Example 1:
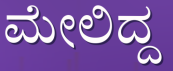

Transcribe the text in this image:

ಮೇಲಿದ್ದ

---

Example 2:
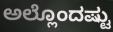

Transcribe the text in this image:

ಅಲ್ಲೊಂದಷ್ಟು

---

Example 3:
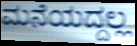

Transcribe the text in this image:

ಮನೆಯದ್ದಲ್ಲ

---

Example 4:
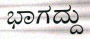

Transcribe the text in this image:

ಭಾಗದ್ದು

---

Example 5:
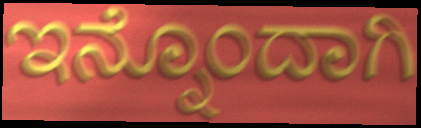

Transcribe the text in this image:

ಇನ್ನೊಂದಾಗಿ